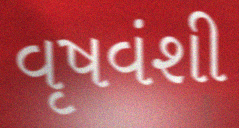
વૃષવંશી